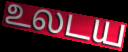
உலடய